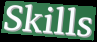
Skills